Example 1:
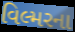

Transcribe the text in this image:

વિલ્મરના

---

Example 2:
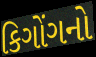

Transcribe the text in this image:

કિગોંગનો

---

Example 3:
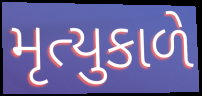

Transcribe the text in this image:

મૃત્યુકાળે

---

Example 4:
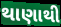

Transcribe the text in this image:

થાણાથી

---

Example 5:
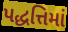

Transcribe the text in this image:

પદ્ધત્તિમાં